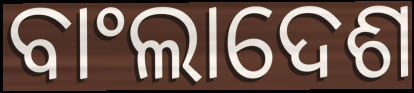
ବାଂଲାଦେଶ